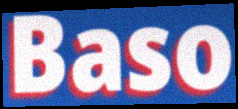
Baso